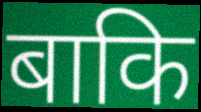
बाकि